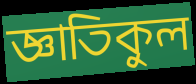
জ্ঞাতিকুল